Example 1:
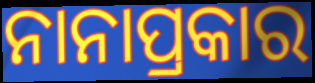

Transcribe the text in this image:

ନାନାପ୍ରକାର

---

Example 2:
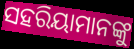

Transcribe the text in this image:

ସହରିୟାମାନଙ୍କୁ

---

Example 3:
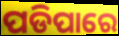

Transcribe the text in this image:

ପଡିପାରେ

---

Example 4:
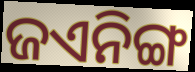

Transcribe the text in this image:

ଜଏନିଙ୍ଗ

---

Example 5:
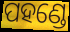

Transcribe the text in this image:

ପହଣ୍ଡେ